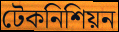
টেকনিশিয়ন